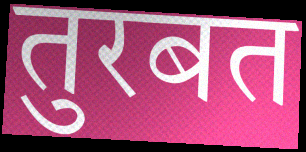
तुरबत